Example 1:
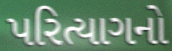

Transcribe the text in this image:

પરિત્યાગનો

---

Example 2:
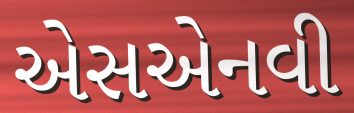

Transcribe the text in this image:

એસએનવી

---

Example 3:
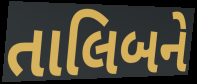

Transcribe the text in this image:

તાલિબને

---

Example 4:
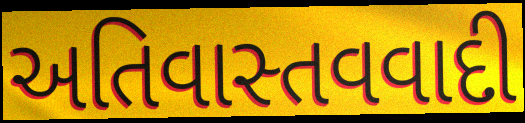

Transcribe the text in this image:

અતિવાસ્તવવાદી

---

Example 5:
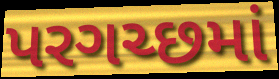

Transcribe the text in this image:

પરગચ્છમાં